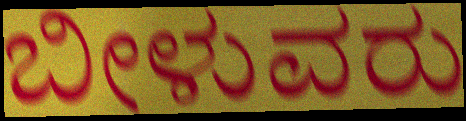
ಬೀಳುವರು